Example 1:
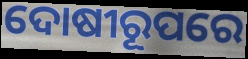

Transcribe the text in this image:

ଦୋଷୀରୂପରେ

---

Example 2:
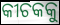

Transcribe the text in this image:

କୀଚକକୁ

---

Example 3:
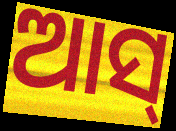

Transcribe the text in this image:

ଆସ୍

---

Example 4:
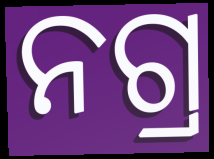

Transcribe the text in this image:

ନଗ୍ର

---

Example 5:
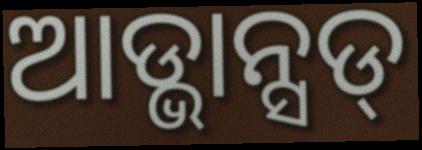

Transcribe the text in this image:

ଆଡ୍ଭାନ୍ସଡ୍